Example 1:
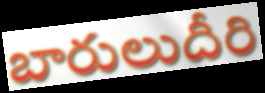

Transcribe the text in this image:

బారులుదీరి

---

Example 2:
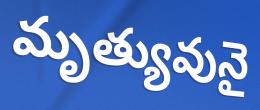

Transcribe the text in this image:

మృత్యువునై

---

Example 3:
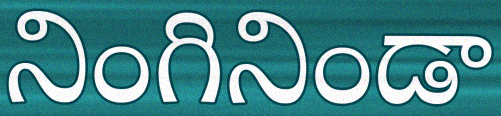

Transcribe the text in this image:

నింగినిండా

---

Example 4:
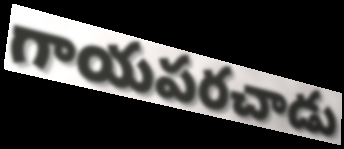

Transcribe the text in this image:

గాయపరచాడు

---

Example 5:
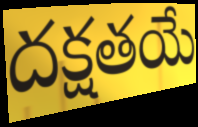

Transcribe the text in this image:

దక్షతయే